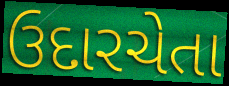
ઉદારચેતા